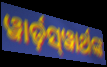
ୱାର୍ଡ଼ସ୍‌ୱାର୍ଥଙ୍କ